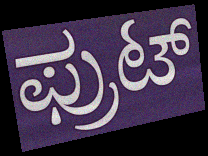
ಫ್ರುಟ್